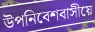
উপনিবেশবাসীয়ে